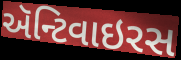
ઍન્ટિવાઇરસ